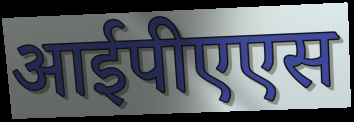
आईपीएएस